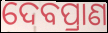
ଦେବପ୍ରାଣ